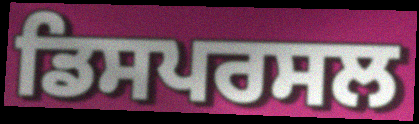
ਡਿਸਪਰਸਲ